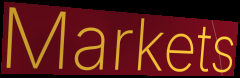
Markets